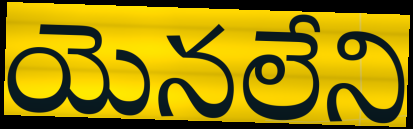
యెనలేని